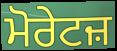
ਮੋਰੇਟਜ਼